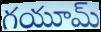
గయూమ్